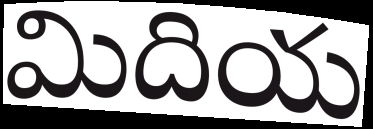
మిదియ